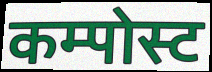
कम्पोस्ट